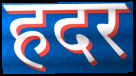
हदर